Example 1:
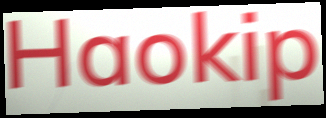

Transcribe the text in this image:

Haokip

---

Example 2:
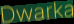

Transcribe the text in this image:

Dwarka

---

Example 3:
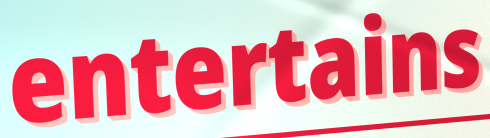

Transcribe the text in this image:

entertains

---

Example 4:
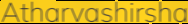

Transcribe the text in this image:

Atharvashirsha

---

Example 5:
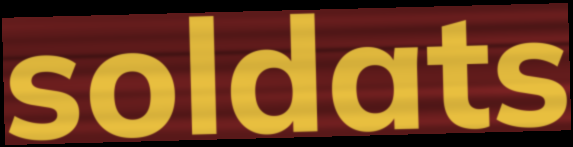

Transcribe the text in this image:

soldats